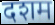
दशम